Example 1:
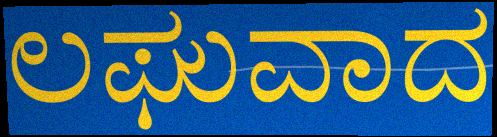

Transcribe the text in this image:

ಲಘುವಾದ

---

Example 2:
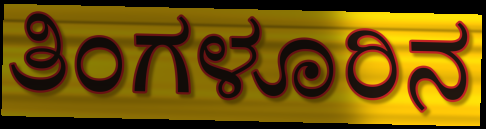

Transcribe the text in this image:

ತಿಂಗಳೂರಿನ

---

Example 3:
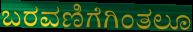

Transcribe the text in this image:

ಬರವಣಿಗೆಗಿಂತಲೂ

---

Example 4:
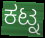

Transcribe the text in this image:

ಕಟ್ನ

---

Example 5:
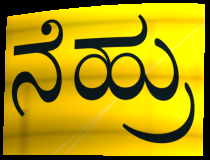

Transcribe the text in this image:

ನೆಹ್ರು